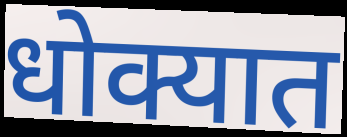
धोक्यात